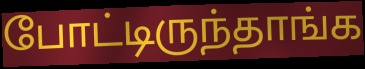
போட்டிருந்தாங்க